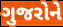
ગુજરોને